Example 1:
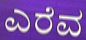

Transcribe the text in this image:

ಎರೆವ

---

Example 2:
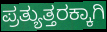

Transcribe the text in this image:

ಪ್ರತ್ಯುತ್ತರಕ್ಕಾಗಿ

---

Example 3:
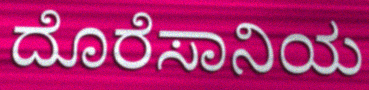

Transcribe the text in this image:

ದೊರೆಸಾನಿಯ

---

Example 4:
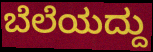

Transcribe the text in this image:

ಬೆಲೆಯದ್ದು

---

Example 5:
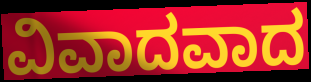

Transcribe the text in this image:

ವಿವಾದವಾದ